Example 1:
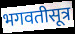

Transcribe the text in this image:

भगवतीसूत्र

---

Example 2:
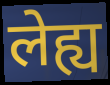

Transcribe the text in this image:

लेह्य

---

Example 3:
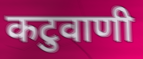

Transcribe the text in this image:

कटुवाणी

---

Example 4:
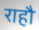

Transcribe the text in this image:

राहौ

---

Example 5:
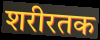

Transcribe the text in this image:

शरीरतक